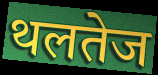
थलतेज